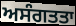
ਅਸੰਗਤਤਾ